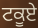
ਟਕੂਏ